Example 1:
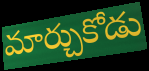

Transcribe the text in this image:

మార్చుకోడు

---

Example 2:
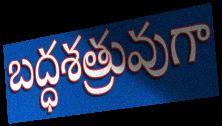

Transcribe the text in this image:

బద్ధశత్రువుగా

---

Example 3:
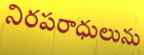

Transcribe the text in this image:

నిరపరాధులును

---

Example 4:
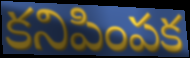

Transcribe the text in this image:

కనిపింపక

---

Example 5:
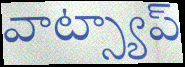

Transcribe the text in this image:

వాట్స్యాప్